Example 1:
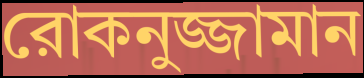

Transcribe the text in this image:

রোকনুজ্জামান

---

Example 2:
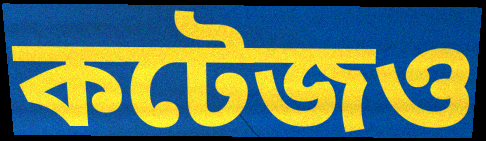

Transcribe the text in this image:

কটেজও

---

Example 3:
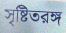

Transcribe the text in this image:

সৃষ্টিতরঙ্গ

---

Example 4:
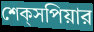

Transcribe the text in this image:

শেক্‌সপিয়ার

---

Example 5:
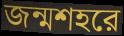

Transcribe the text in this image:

জন্মশহরে